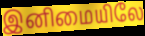
இனிமையிலே